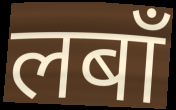
लबाँ